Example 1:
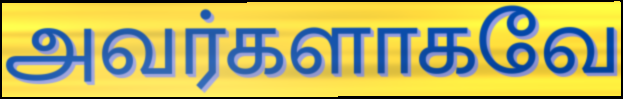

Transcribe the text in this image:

அவர்களாகவே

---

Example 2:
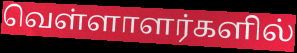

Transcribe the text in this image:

வெள்ளாளர்களில்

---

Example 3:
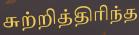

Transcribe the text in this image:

சுற்றித்திரிந்த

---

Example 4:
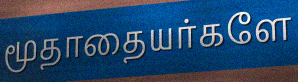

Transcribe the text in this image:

மூதாதையர்களே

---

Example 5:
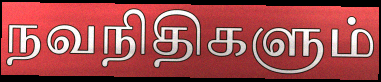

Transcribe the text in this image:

நவநிதிகளும்